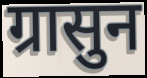
ग्रासुन